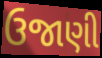
ઉજાણી